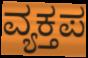
ವ್ಯಕ್ತಪ